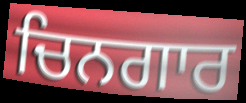
ਚਿਨਗਾਰ